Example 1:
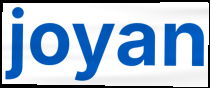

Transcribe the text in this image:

joyan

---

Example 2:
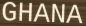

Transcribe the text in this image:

GHANA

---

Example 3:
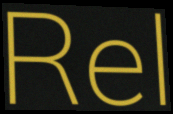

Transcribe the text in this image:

Rel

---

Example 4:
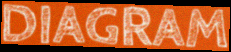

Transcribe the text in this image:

DIAGRAM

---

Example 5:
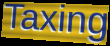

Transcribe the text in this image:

Taxing